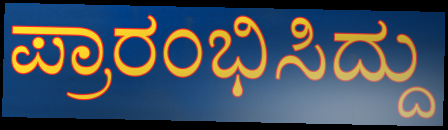
ಪ್ರಾರಂಭಿಸಿದ್ದು